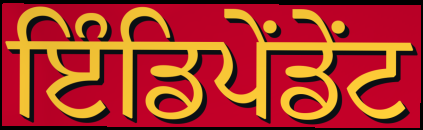
ਇੰਡਿਪੇਂਡੇਂਟ